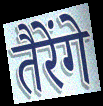
तैरेंगे